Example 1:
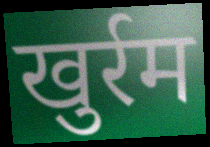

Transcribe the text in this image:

खुर्रम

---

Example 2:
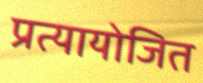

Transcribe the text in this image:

प्रत्यायोजित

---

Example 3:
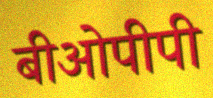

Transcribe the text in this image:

बीओपीपी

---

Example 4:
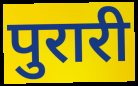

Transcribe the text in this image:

पुरारी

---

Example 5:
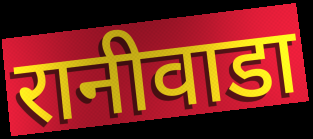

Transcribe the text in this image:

रानीवाडा